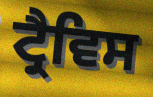
ਟ੍ਰੈਵਿਸ